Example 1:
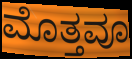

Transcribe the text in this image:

ಮೊತ್ತವೂ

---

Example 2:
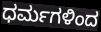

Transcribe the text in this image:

ಧರ್ಮಗಳಿಂದ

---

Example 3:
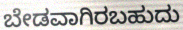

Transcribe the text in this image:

ಬೇಡವಾಗಿರಬಹುದು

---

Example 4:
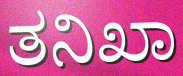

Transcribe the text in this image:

ತನಿಖಾ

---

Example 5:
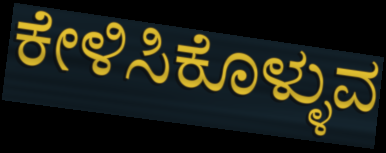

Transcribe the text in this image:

ಕೇಳಿಸಿಕೊಳ್ಳುವ